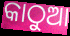
କାଠୁଆ